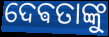
ଦେଵତାଙ୍କୁ